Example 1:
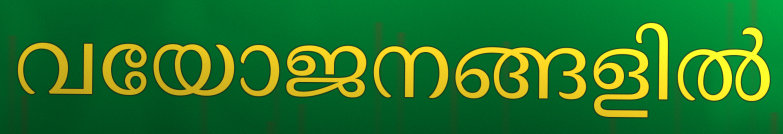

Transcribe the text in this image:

വയോജനങ്ങളിൽ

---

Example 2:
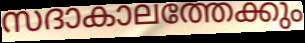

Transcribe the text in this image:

സദാകാലത്തേക്കും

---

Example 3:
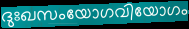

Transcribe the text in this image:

ദുഃഖസംയോഗവിയോഗം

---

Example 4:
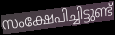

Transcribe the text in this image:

സംക്ഷേപിച്ചിട്ടുണ്ട്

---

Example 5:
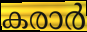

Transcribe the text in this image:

കരാർ